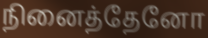
நினைத்தேனோ